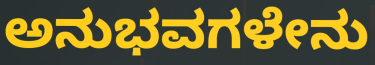
ಅನುಭವಗಳೇನು